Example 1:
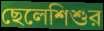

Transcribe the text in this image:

ছেলেশিশুর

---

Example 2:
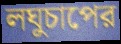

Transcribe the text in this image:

লঘুচাপের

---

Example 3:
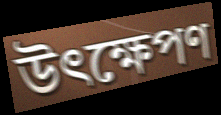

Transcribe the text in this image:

উৎক্ষেপণ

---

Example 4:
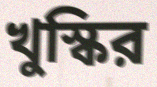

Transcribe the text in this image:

খুস্কির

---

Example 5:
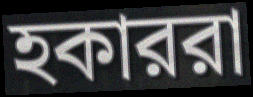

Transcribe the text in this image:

হকাররা